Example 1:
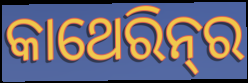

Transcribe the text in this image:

କାଥେରିନ୍‌ର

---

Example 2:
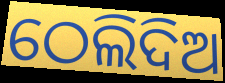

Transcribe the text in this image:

ଠେଲିଦିଅ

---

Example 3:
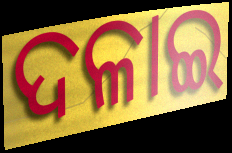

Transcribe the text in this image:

ଦଳାଇ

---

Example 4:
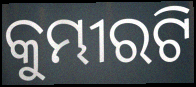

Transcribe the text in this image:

କୁମ୍ଭୀରଟି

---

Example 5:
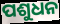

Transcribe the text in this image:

ପଶୁଧନ